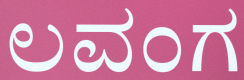
ಲವಂಗ